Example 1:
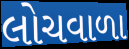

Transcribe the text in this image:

લોચવાળા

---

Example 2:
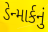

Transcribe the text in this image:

ડેન્માર્કનું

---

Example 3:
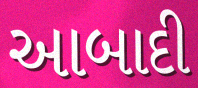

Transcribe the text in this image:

આબાદી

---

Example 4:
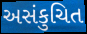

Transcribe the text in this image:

અસંકુચિત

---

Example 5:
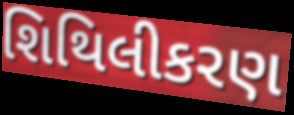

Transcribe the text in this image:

શિથિલીકરણ